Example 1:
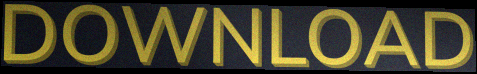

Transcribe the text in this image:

DOWNLOAD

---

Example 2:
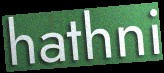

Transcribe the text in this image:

hathni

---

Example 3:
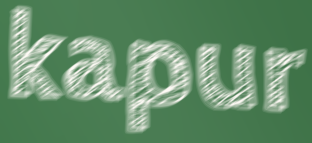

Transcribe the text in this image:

kapur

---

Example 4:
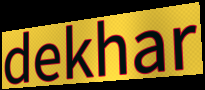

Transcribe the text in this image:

dekhar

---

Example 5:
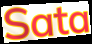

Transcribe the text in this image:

Sata